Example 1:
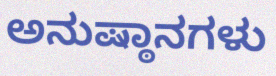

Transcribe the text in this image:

ಅನುಷ್ಠಾನಗಳು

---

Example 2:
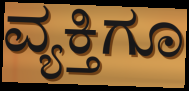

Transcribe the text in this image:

ವ್ಯಕ್ತಿಗೂ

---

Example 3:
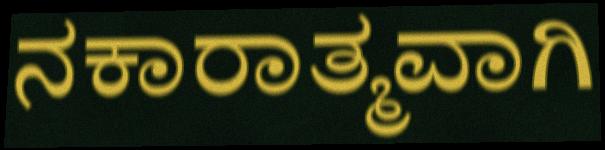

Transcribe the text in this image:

ನಕಾರಾತ್ಮವಾಗಿ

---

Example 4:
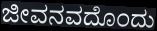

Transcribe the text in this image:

ಜೀವನವದೊಂದು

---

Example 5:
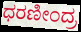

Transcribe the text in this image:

ಧರಣೀಂದ್ರ